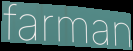
farman